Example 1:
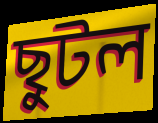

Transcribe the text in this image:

ছুটল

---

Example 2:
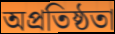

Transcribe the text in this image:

অপ্রতিষ্ঠতা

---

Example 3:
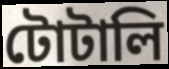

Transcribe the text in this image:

টোটালি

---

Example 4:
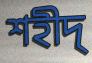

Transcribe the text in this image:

শহীদ্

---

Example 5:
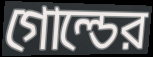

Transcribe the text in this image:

গোল্ডের